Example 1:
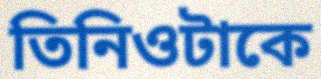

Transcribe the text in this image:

তিনিওটাকে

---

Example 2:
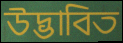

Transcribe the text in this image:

উদ্ভাবিত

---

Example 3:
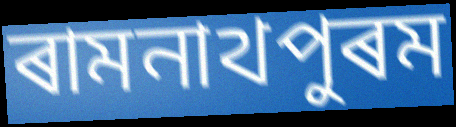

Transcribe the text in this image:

ৰামনাথপুৰম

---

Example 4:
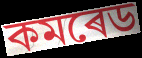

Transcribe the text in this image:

কমৰেড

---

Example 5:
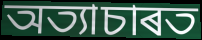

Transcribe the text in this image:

অত্যাচাৰত